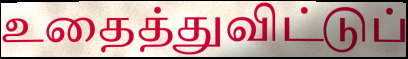
உதைத்துவிட்டுப்